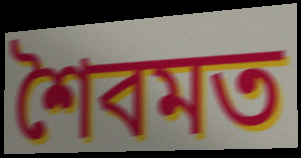
শৈবমত